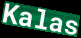
Kalas